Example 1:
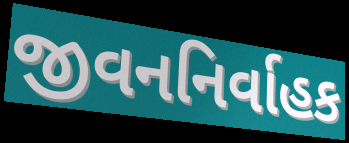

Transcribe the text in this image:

જીવનનિર્વાહક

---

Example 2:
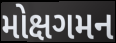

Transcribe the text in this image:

મોક્ષગમન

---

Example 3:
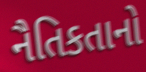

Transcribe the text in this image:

નૈતિકતાનો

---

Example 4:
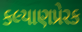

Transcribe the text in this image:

કલ્યાણપ્રેરક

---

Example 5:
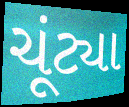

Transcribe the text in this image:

ચૂંટ્યા